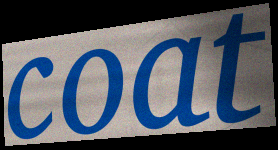
coat